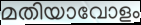
മതിയാവോളം